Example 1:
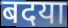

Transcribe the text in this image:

बदया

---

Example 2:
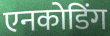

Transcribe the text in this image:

एनकोडिंग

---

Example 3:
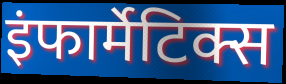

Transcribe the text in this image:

इंफार्मेटिक्स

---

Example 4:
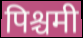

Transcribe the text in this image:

पिश्चमी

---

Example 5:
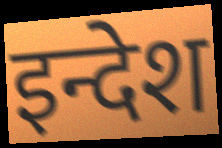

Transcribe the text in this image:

इन्देश